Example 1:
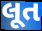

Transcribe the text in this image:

લૂત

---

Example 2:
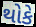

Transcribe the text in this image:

થોકે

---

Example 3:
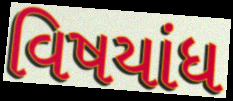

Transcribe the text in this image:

વિષયાંધ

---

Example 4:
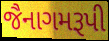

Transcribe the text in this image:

જૈનાગમરૂપી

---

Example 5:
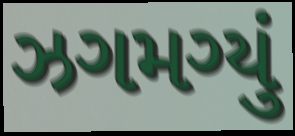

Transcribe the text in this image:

ઝગમગ્યું